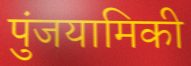
पुंजयामिकी